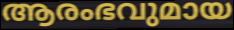
ആരംഭവുമായ